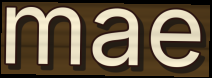
mae